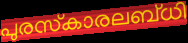
പുരസ്‌കാരലബ്ധി